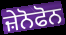
ਜ਼ੇਨੋਫੋਨ